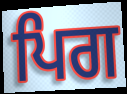
ਪਿਗ